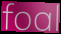
foal